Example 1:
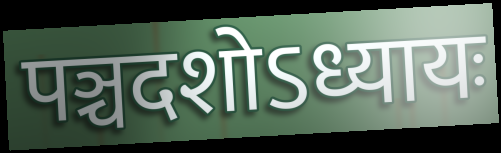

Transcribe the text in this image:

पञ्चदशोऽध्यायः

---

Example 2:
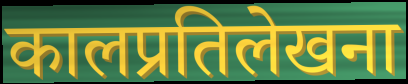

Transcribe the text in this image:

कालप्रतिलेखना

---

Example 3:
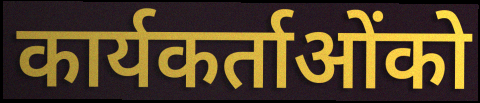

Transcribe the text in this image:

कार्यकर्ताओंको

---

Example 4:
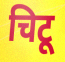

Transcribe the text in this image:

चिटू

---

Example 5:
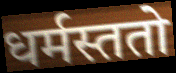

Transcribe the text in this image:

धर्मस्ततो